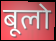
बूलो